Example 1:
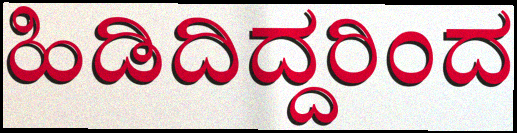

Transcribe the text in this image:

ಹಿಡಿದಿದ್ದರಿಂದ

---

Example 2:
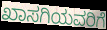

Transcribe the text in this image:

ಖಾಸಗಿಯವರಿಗೆ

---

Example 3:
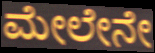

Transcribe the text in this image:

ಮೇಲೇನೇ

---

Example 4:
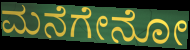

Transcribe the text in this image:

ಮನೆಗೇನೋ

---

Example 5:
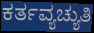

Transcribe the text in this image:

ಕರ್ತವ್ಯಚ್ಯುತಿ